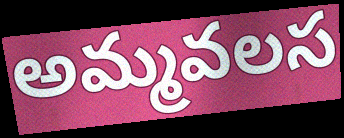
అమ్మవలస